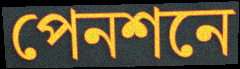
পেনশনে